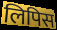
लिपिस